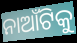
ନାଆଁଟିକୁ